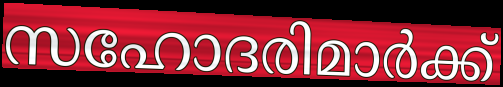
സഹോദരിമാർക്ക്